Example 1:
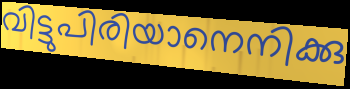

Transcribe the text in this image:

വിട്ടുപിരിയാനെനിക്കു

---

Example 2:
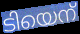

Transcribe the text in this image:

ടിയെന്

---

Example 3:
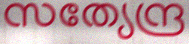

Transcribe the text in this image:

സത്യേന്ദ്ര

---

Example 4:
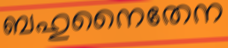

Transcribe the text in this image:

ബഹുനൈതേന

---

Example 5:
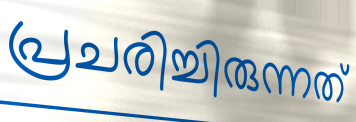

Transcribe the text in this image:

പ്രചരിച്ചിരുന്നത്